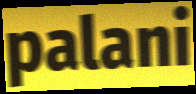
palani